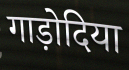
गाड़ोदिया